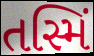
તસ્મિં